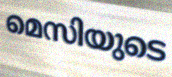
മെസിയുടെ